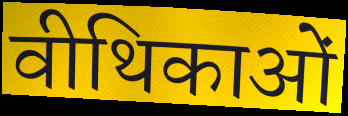
वीथिकाओं